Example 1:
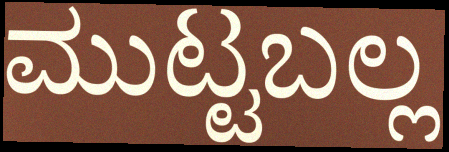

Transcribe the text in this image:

ಮುಟ್ಟಬಲ್ಲ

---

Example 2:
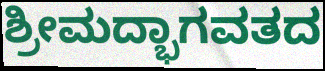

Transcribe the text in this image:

ಶ್ರೀಮದ್ಭಾಗವತದ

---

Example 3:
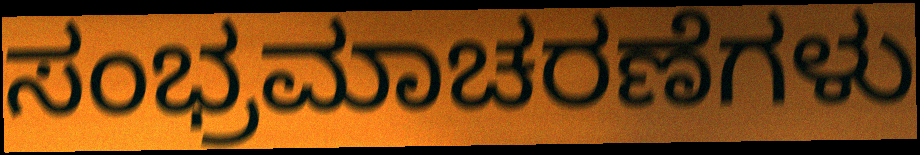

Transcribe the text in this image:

ಸಂಭ್ರಮಾಚರಣೆಗಳು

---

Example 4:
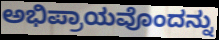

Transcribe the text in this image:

ಅಭಿಪ್ರಾಯವೊಂದನ್ನು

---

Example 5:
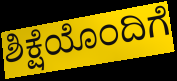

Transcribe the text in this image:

ಶಿಕ್ಷೆಯೊಂದಿಗೆ